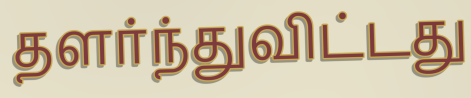
தளர்ந்துவிட்டது